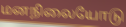
மனநிலையோடு